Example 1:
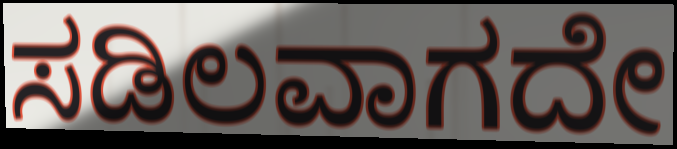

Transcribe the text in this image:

ಸಡಿಲವಾಗದೇ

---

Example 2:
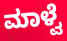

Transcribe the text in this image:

ಮಾಳ್ವೆ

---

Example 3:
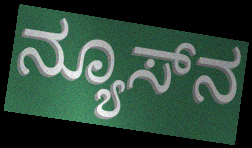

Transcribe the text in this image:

ನ್ಯೂಸ್‌ನ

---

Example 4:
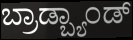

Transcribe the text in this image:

ಬ್ರಾಡ್ಬ್ಯಾಂಡ್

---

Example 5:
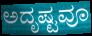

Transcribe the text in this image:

ಅದೃಷ್ಟವೂ